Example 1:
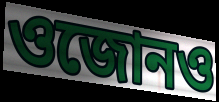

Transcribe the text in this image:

ওজোনও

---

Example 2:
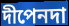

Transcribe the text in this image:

দীপেনদা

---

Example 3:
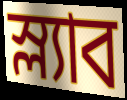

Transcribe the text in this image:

স্ল্যাব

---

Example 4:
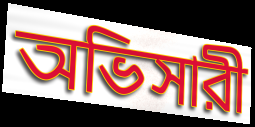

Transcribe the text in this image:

অভিসারী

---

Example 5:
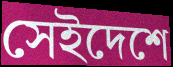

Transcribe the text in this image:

সেইদেশে